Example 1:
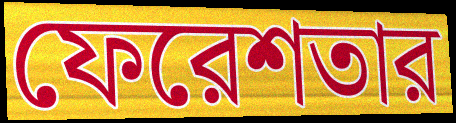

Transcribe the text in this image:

ফেরেশতার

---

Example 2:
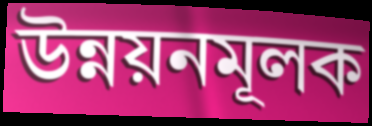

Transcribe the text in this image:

উন্নয়নমূলক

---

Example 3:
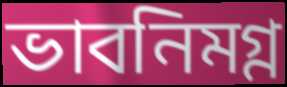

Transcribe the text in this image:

ভাবনিমগ্ন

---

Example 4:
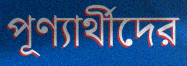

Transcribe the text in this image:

পূণ্যার্থীদের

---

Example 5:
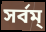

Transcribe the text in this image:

সর্বম্